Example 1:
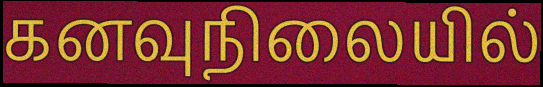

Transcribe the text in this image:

கனவுநிலையில்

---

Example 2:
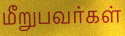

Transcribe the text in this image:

மீறுபவர்கள்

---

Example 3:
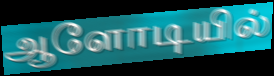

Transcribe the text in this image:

ஆளோடியில்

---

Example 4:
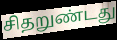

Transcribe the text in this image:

சிதறுண்டது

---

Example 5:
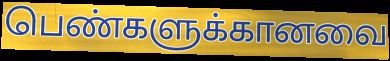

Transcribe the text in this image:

பெண்களுக்கானவை